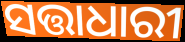
ସତ୍ତାଧାରୀ